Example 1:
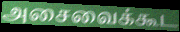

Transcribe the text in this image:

அசைவைக்கூட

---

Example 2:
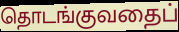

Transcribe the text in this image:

தொடங்குவதைப்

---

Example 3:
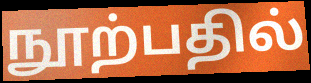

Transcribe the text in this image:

நூற்பதில்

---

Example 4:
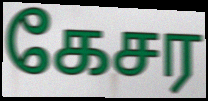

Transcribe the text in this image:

கேசர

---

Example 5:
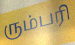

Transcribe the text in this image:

ரும்பரி